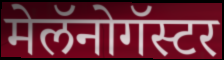
मेलॅनोगॅस्टर